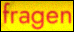
fragen